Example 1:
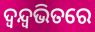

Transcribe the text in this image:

ଦ୍ୱନ୍ଦ୍ୱଭିତରେ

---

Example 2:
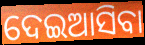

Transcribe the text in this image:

ଦେଇଆସିବା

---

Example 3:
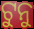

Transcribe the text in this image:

ଟୁନୁ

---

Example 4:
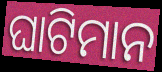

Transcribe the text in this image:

ଘାଟିମାନ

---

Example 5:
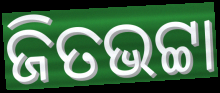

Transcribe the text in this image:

ଜିତଭଟ୍ଟା